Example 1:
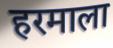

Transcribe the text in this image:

हरमाला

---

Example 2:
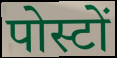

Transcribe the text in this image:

पोस्टों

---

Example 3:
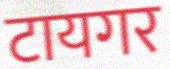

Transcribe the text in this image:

टायगर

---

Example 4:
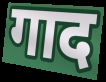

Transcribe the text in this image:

गाद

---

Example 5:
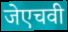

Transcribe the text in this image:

जेएचवी